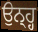
ਉਨ੍ਹ੍ਹ